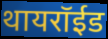
थायरॉईड